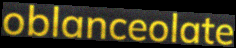
oblanceolate